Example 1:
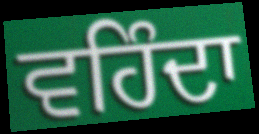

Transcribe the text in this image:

ਵਹਿੰਦਾ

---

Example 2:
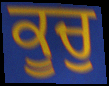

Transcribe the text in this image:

ਕੂਚੁ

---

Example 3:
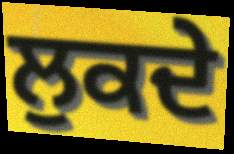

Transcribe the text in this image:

ਲੁਕਦੇ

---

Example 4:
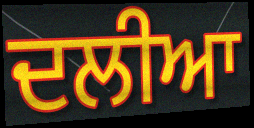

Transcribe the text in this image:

ਦਲੀਆ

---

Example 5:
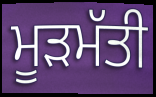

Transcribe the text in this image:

ਮੂੜਮੱਤੀ